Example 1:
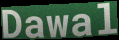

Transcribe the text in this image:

Dawal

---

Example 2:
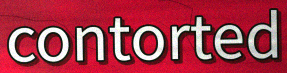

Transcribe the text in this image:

contorted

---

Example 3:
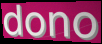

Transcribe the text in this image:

dono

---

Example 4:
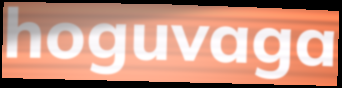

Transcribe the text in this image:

hoguvaga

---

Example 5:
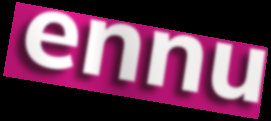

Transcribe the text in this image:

ennu